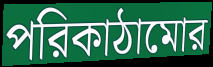
পরিকাঠামোর